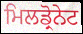
ਮਿਲਡ੍ਰੋਨੇਟ